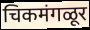
चिकमंगळूर